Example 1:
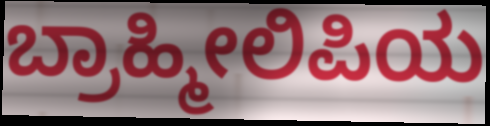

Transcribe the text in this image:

ಬ್ರಾಹ್ಮೀಲಿಪಿಯ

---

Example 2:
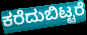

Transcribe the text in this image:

ಕರೆದುಬಿಟ್ಟರೆ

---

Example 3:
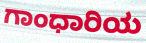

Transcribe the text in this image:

ಗಾಂಧಾರಿಯ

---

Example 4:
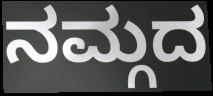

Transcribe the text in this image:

ನಮ್ಗದ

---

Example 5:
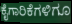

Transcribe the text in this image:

ಕೈಗಾರಿಕೆಗಳಿಗೂ